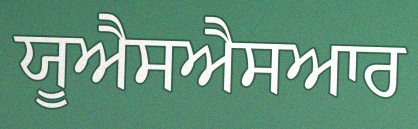
ਯੂਐਸਐਸਆਰ